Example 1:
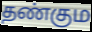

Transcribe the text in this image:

தண்கும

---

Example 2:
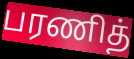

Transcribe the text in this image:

பரணித்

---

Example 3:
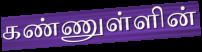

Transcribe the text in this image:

கண்ணுள்ளின்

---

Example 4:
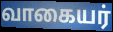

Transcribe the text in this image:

வாகையர்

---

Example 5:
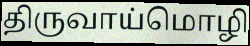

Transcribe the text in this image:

திருவாய்மொழி